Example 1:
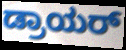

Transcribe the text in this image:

ಡ್ರಾಯರ್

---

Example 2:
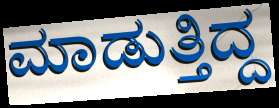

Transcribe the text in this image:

ಮಾಡುತ್ತಿದ್ದ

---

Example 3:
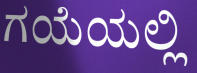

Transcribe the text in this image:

ಗಯೆಯಲ್ಲಿ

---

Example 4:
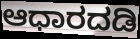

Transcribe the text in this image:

ಆಧಾರದಡಿ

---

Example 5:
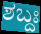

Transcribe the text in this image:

ಶಬ್ದಃ